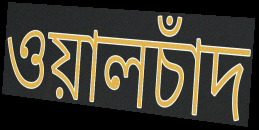
ওয়ালচাঁদ